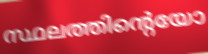
സ്ഥലത്തിന്റെയോ